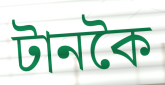
টানকৈ